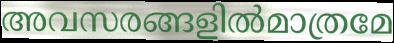
അവസരങ്ങളിൽമാത്രമേ